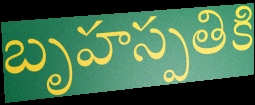
బృహస్పతికి